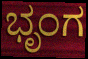
ಭೃಂಗ